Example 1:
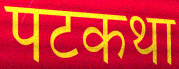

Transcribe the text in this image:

पटकथा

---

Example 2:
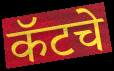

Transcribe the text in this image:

कॅटचे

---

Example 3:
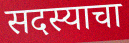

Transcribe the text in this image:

सदस्याचा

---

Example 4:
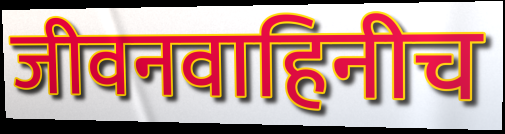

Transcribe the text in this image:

जीवनवाहिनीच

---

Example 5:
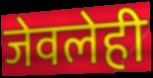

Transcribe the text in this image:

जेवलेही